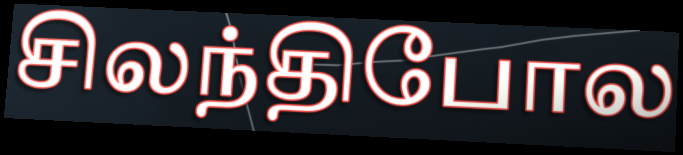
சிலந்திபோல